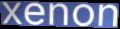
xenon